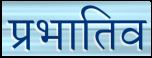
प्रभातिव